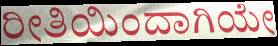
ರೀತಿಯಿಂದಾಗಿಯೇ